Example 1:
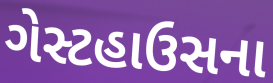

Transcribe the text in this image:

ગેસ્ટહાઉસના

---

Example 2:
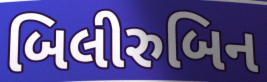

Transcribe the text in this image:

બિલીરુબિન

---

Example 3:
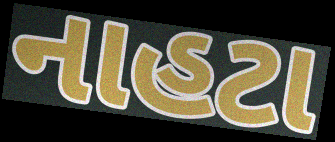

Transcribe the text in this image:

નાહટા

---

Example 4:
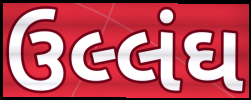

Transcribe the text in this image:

ઉલ્લંઘ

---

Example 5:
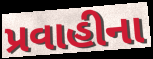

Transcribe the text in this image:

પ્રવાહીના